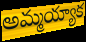
అమ్మయ్యాక